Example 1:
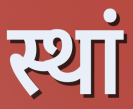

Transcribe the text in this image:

स्थां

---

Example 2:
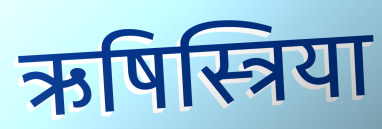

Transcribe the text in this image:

ऋषिस्त्रिया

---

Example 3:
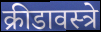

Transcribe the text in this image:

क्रीडावस्त्रे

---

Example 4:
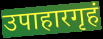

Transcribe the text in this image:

उपाहारगृहं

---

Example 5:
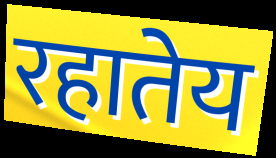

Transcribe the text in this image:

रहातेय